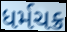
ધર્મચક્ર